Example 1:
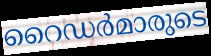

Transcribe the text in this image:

റൈഡർമാരുടെ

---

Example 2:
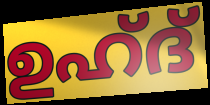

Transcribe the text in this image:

ഉഹ്ദ്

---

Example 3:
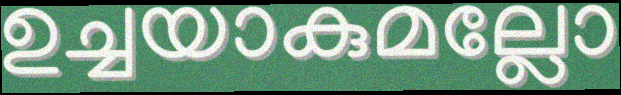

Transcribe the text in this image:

ഉച്ചയാകുമല്ലോ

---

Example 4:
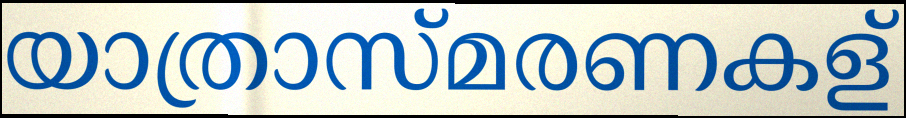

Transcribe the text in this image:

യാത്രാസ്മരണകള്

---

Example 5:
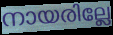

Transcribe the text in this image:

നായരില്ലേ